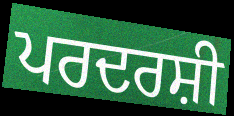
ਪਰਦਰਸ਼ੀ